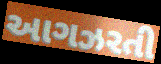
આગઝરતી